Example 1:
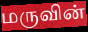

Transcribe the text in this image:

மருவின்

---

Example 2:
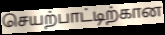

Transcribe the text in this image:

செயற்பாட்டிற்கான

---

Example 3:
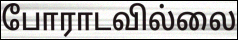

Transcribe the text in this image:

போராடவில்லை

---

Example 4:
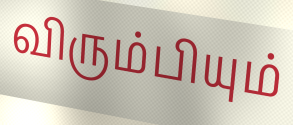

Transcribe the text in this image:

விரும்பியும்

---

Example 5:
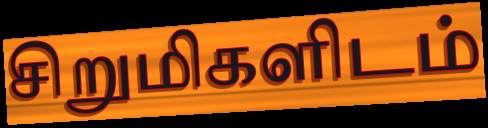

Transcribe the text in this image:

சிறுமிகளிடம்